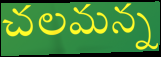
చలమన్న